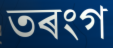
তৰংগ